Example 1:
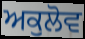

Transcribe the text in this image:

ਅਕੁਲੋਵ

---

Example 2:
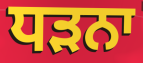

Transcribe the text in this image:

ਧੜਨਾ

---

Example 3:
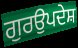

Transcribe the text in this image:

ਗੁਰਉਪਦੇਸ਼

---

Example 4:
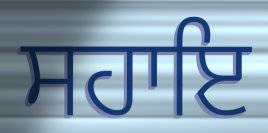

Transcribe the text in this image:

ਸਹਾਇ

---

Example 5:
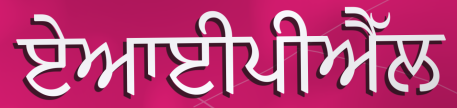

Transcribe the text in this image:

ਏਆਈਪੀਐੱਲ